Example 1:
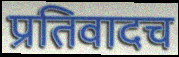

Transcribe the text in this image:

प्रतिवादच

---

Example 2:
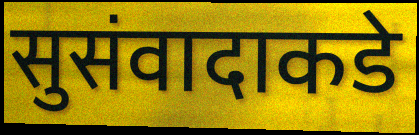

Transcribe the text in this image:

सुसंवादाकडे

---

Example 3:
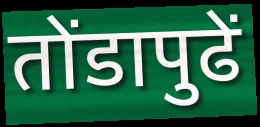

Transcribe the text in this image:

तोंडापुढें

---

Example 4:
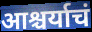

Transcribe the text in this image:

आश्चर्याचं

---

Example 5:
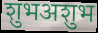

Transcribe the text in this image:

शुभअशुभ